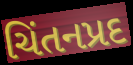
ચિંતનપ્રદ